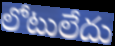
లోటులేదు